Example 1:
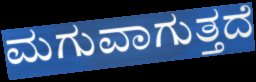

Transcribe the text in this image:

ಮಗುವಾಗುತ್ತದೆ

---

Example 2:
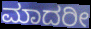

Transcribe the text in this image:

ಮಾದರೀ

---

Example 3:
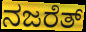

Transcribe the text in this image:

ನಜರೆತ್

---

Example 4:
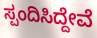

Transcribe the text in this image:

ಸ್ಪಂದಿಸಿದ್ದೇವೆ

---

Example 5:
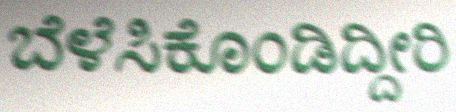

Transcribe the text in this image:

ಬೆಳೆಸಿಕೊಂಡಿದ್ದೀರಿ